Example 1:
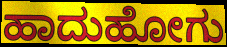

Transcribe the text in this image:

ಹಾದುಹೋಗು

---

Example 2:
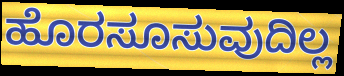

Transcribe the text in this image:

ಹೊರಸೂಸುವುದಿಲ್ಲ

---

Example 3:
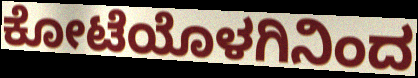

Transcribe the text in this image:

ಕೋಟೆಯೊಳಗಿನಿಂದ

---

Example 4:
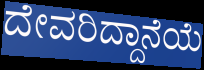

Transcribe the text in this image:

ದೇವರಿದ್ದಾನೆಯೆ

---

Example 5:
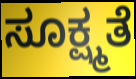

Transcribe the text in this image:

ಸೂಕ್ಷ್ಮತೆ